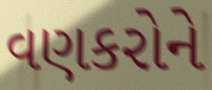
વણકરોને